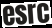
esrc